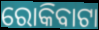
ରୋକିବାଟା